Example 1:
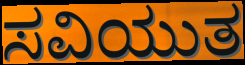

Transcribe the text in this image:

ಸವಿಯುತ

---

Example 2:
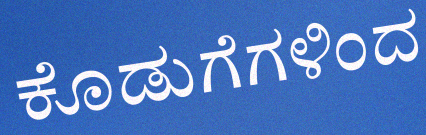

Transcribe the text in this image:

ಕೊಡುಗೆಗಳಿಂದ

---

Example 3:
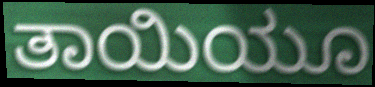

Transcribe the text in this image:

ತಾಯಿಯೂ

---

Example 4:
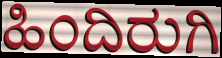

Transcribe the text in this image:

ಹಿಂದಿರುಗಿ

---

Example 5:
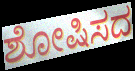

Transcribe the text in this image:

ಶೋಷಿಸದ